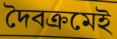
দৈবক্রমেই